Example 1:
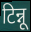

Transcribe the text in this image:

टिन्नू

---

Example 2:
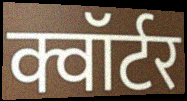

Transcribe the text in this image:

क्‍वॉर्टर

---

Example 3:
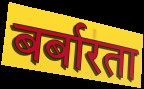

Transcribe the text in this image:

बर्बारता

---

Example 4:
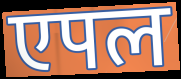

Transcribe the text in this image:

एपल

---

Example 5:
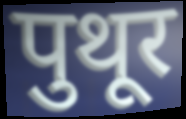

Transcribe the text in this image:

पुथूर